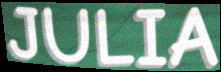
JULIA